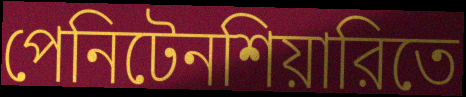
পেনিটেনশিয়ারিতে